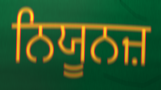
ਨਿਯੂਨਜ਼